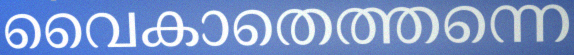
വൈകാതെത്തന്നെ